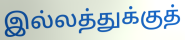
இல்லத்துக்குத்